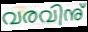
വരവിനു്